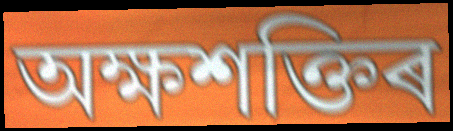
অক্ষশক্তিৰ